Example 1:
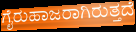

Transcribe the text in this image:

ಗೈರುಹಾಜರಾಗಿರುತ್ತದೆ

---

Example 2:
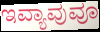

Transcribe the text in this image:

ಇವ್ಯಾವುವೂ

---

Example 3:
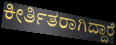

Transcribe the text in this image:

ಕೀರ್ತಿತರಾಗಿದ್ದಾರೆ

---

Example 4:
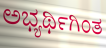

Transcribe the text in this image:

ಅಭ್ಯರ್ಥಿಗಿಂತ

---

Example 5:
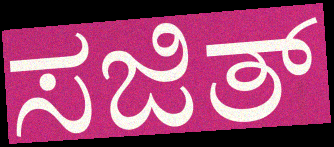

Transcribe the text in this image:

ಸಜಿತ್